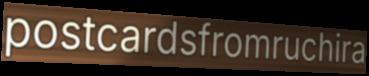
postcardsfromruchira